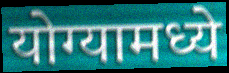
योग्यामध्ये